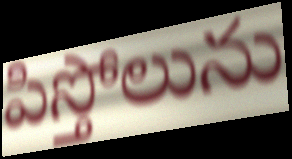
పిస్తోలును